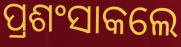
ପ୍ରଶଂସାକଲେ